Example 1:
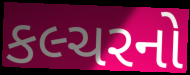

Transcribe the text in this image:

કલ્ચરનો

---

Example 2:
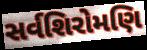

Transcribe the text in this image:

સર્વશિરોમણિ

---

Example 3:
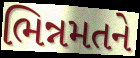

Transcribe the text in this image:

ભિન્નમતને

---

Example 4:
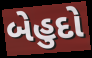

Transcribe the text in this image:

બેહુદો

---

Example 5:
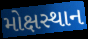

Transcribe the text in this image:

મોક્ષસ્થાન